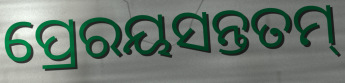
ପ୍ରେରୟସନ୍ତତମ୍